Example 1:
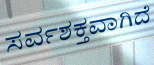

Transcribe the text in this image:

ಸರ್ವಶಕ್ತವಾಗಿದೆ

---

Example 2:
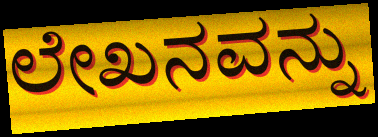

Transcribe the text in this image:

ಲೇಖನವನ್ನು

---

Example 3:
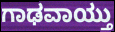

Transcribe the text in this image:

ಗಾಢವಾಯ್ತು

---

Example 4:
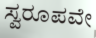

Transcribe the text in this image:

ಸ್ವರೂಪವೇ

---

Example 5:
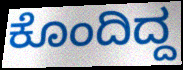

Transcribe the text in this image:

ಕೊಂದಿದ್ದ